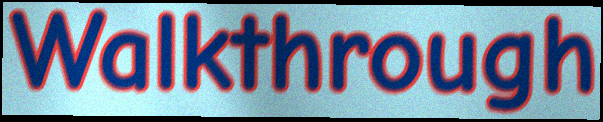
Walkthrough